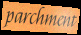
parchment